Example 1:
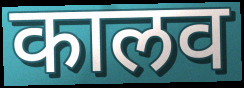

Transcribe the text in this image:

कालव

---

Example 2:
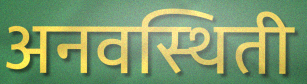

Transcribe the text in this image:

अनवस्थिती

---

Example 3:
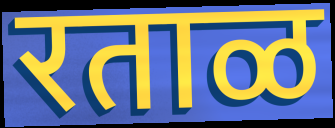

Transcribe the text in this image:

रताळ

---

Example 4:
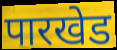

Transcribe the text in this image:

पारखेड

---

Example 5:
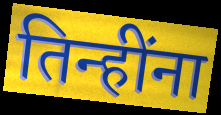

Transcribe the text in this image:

तिन्हींना